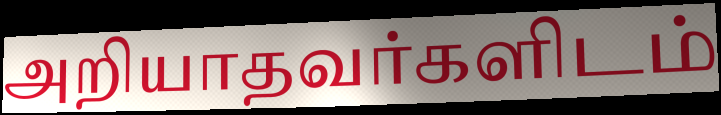
அறியாதவர்களிடம்